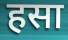
हसा